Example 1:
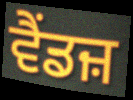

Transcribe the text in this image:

ਵੈਂਡਜ਼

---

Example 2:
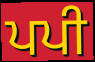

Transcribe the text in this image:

ਪਪੀ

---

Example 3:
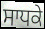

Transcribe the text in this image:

ਸਾਧਕੇ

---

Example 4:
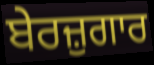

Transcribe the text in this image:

ਬੇਰਜ਼ੁਗਾਰ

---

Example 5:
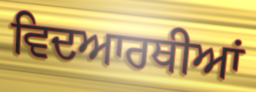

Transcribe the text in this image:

ਵਿਦਆਰਥੀਆਂ